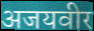
अजयवीर